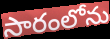
సారంలోను